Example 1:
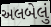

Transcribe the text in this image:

અલબેલું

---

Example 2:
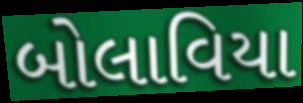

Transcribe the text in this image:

બોલાવિયા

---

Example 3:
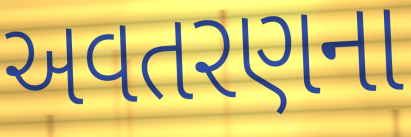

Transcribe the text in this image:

અવતરણના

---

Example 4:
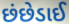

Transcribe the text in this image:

છંછેડાઈ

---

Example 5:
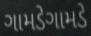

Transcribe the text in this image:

ગામડેગામડે